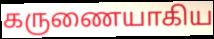
கருணையாகிய